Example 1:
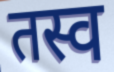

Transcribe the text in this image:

तस्व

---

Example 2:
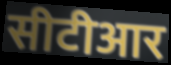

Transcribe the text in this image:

सीटीआर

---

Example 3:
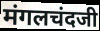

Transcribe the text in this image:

मंगलचंदजी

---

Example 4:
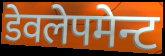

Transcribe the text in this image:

डेवलेपमेन्ट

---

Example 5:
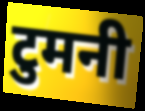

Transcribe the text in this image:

टुमनी